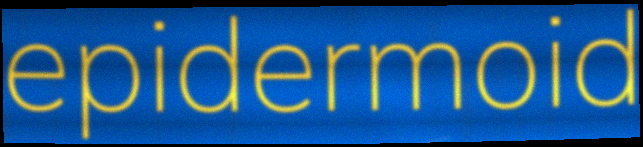
epidermoid